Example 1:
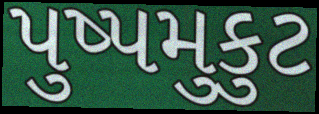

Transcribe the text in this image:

પુષ્પમુકુટ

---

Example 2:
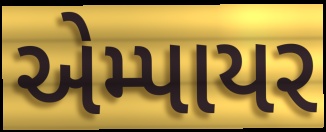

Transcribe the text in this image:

એમ્પાયર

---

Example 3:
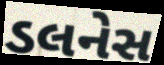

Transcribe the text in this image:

ડલનેસ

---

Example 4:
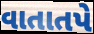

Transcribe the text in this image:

વાતાતપે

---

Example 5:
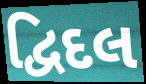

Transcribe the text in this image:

દ્વિદલ